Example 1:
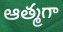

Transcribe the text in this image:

ఆత్మగా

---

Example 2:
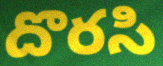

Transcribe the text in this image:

దొరసి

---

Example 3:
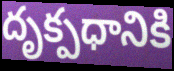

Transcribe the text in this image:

దృక్పధానికి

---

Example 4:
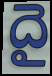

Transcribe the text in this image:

దై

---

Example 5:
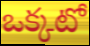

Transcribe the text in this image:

ఒక్కటో